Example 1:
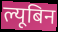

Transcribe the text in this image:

ल्यूबिन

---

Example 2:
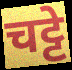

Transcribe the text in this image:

चट्टे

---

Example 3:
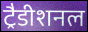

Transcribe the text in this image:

ट्रैडीशनल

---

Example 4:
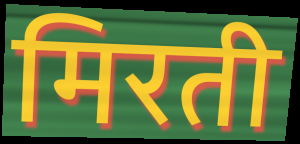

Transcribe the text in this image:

मिरती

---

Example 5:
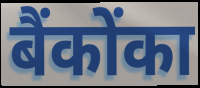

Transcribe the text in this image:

बैंकोंका